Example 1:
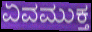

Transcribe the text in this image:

ಏವಮುಕ್ತ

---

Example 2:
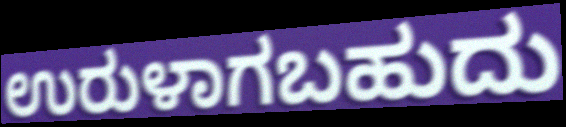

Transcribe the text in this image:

ಉರುಳಾಗಬಹುದು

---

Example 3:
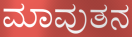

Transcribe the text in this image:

ಮಾವುತನ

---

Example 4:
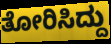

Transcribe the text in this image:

ತೋರಿಸಿದ್ದು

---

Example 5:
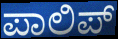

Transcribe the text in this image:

ಪಾಲಿಪ್